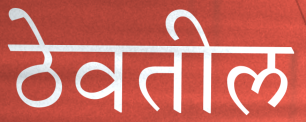
ठेवतील